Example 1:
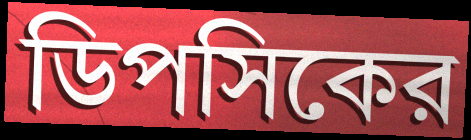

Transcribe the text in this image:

ডিপসিকের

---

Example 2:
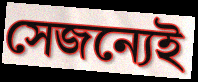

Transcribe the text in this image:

সেজন্যেই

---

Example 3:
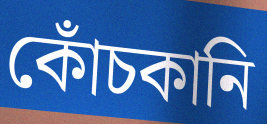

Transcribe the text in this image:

কোঁচকানি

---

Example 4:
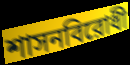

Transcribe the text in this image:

শাসনবিরোধী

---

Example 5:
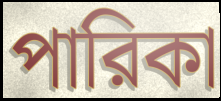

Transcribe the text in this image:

পারিকা